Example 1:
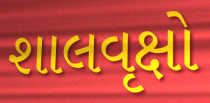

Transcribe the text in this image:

શાલવૃક્ષો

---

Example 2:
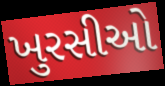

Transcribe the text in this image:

ખુરસીઓ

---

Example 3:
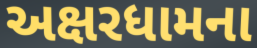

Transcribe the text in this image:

અક્ષરધામના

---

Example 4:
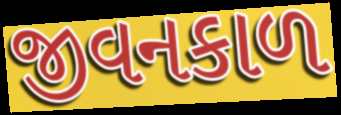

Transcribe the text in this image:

જીવનકાળ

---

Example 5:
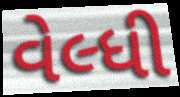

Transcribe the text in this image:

વેલ્ધી